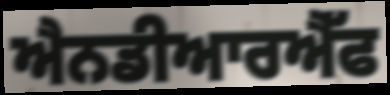
ਐਨਡੀਆਰਐੱਫ